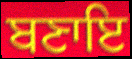
ਬਣਾਇ